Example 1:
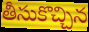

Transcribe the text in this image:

తీసుకొచ్చిన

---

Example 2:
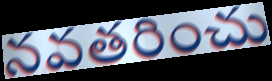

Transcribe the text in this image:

నవతరించు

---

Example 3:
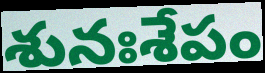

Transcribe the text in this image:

శునఃశేపం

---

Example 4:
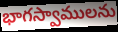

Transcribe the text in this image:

భాగస్వాములను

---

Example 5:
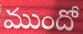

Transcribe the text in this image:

ముందో